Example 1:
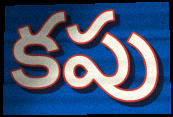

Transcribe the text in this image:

కపు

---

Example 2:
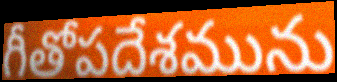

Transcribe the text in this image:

గీతోపదేశమును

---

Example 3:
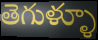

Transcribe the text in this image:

తెగుళ్ళూ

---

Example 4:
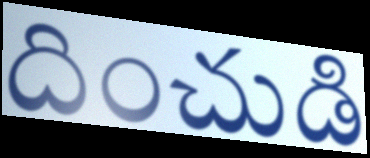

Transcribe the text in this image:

దించుడి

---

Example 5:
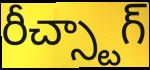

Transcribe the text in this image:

రీచ్స్టాగ్